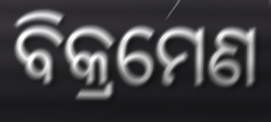
ବିକ୍ରମେଣ